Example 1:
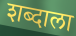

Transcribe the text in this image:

शब्दाला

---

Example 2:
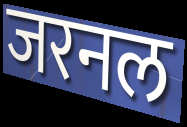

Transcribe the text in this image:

जरनल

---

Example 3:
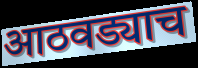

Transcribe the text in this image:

आठवड्याच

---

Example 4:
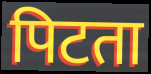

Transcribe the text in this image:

पिटता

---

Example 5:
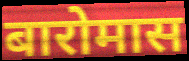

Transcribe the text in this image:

बारोमास